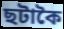
ছটাকৈ